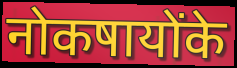
नोकषायोंके